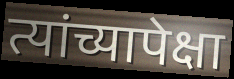
त्यांच्यापेक्षा